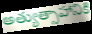
అత్యుత్సాహానికి